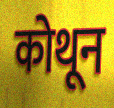
कोथून